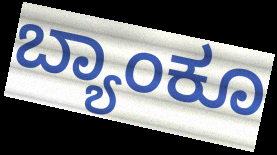
ಬ್ಯಾಂಕೂ